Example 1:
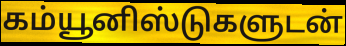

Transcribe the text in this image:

கம்யூனிஸ்டுகளுடன்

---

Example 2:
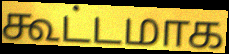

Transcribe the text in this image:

கூட்டமாக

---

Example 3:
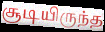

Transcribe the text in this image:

சூடியிருந்த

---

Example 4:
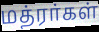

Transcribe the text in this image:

மத்ரர்கள்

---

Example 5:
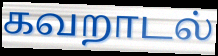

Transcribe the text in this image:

கவறாடல்